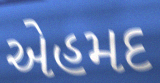
એહમદ